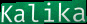
Kalika